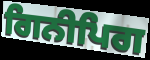
ਗਿਨੀਪਿਗ